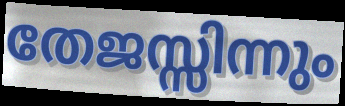
തേജസ്സിന്നും